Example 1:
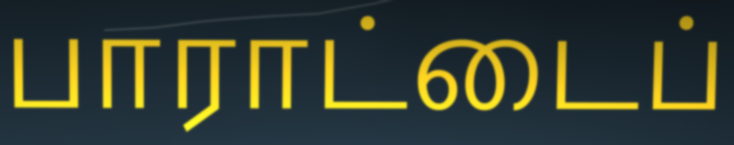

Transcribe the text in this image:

பாராட்டைப்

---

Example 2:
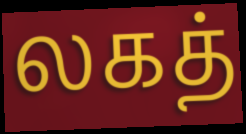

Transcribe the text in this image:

லகத்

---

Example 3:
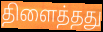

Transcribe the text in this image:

திளைத்தது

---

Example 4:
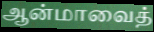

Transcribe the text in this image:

ஆன்மாவைத்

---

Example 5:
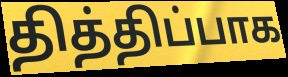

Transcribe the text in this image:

தித்திப்பாக